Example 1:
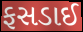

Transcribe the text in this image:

ફસડાઈ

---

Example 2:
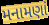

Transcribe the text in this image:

મનામણાં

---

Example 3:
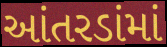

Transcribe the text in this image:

આંતરડાંમાં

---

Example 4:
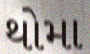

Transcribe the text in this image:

થોમા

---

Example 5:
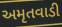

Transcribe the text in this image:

અમૃતવાડી